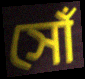
সোঁ